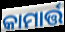
କାମାର୍ତ୍ତ